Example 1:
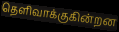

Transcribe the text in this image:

தெளிவாக்குகின்றன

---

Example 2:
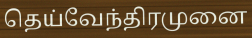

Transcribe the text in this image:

தெய்வேந்திரமுனை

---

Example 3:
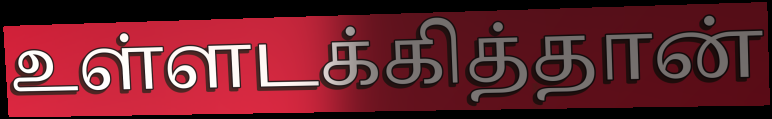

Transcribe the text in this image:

உள்ளடக்கித்தான்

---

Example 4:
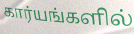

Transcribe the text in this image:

கார்யங்களில்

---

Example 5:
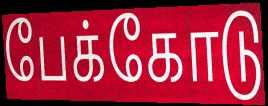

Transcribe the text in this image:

பேக்கோடு